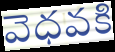
వెధవకి